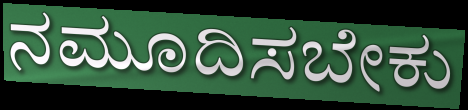
ನಮೂದಿಸಬೇಕು